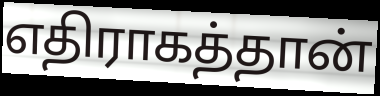
எதிராகத்தான்